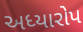
અધ્યારોપ